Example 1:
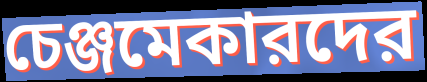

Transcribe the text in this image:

চেঞ্জমেকারদের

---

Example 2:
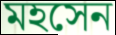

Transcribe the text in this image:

মহসেন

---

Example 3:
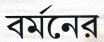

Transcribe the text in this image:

বর্মনের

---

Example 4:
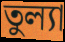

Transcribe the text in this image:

তুল্যা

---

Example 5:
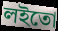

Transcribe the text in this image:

লইতো